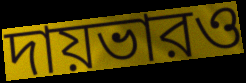
দায়ভারও